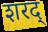
शरद्